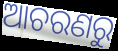
ଆଚରଣରୁ